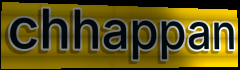
chhappan